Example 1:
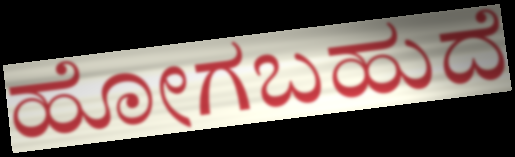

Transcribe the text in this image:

ಹೋಗಬಹುದೆ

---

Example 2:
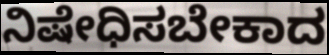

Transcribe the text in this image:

ನಿಷೇಧಿಸಬೇಕಾದ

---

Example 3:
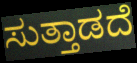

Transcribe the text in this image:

ಸುತ್ತಾಡದೆ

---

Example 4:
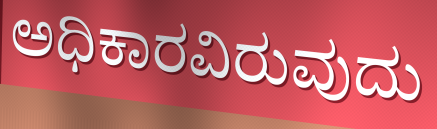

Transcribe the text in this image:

ಅಧಿಕಾರವಿರುವುದು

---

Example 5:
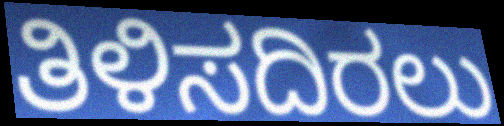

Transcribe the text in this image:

ತಿಳಿಸದಿರಲು